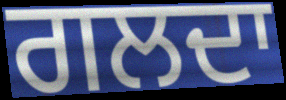
ਗਲਦਾ